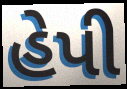
હેપી